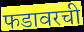
फडावरची